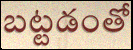
బట్టడంతో